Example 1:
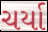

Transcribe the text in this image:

ચર્યા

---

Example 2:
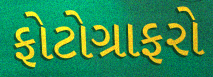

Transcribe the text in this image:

ફોટોગ્રાફરો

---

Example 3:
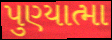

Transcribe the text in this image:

પુણ્યાત્મા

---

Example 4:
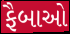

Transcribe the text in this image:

ફૈબાઓ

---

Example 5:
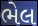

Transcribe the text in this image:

ભેલ